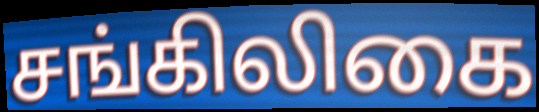
சங்கிலிகை